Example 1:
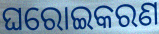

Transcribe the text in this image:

ଘରୋଇକରଣ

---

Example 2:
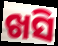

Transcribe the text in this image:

ଖସି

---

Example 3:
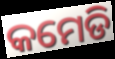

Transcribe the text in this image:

କମେଡି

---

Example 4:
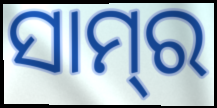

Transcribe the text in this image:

ସାମ୍‌ର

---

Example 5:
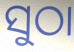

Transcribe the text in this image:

ସୁଠା